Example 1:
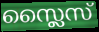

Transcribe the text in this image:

സ്ലൈസ്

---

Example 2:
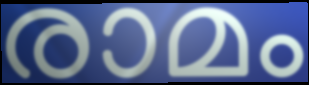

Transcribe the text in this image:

രാമം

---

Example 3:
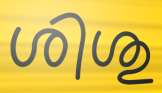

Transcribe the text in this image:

ശിശു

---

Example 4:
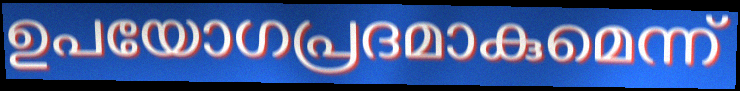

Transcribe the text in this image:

ഉപയോഗപ്രദമാകുമെന്ന്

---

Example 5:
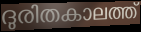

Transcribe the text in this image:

ദുരിതകാലത്ത്